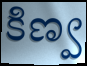
కిణ్వ